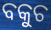
ବକୁଚ